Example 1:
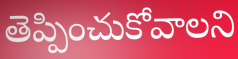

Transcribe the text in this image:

తెప్పించుకోవాలని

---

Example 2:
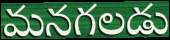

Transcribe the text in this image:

మనగలడు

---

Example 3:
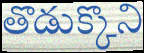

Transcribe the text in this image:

తొడుక్కొని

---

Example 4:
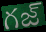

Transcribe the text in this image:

గజ్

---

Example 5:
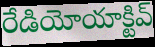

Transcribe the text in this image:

రేడియోయాక్టివ్